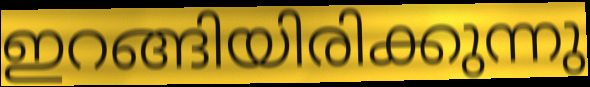
ഇറങ്ങിയിരിക്കുന്നു